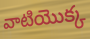
వాటియొక్క